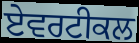
ਏਵਰਟੀਕਲ